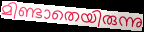
മിണ്ടാതെയിരുന്നു